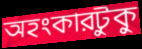
অহংকারটুকু